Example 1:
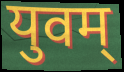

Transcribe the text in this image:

युवम्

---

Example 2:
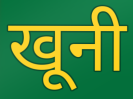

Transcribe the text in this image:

खूनी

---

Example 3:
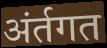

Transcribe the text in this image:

अंर्तगत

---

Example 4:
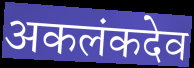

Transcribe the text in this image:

अकलंकदेव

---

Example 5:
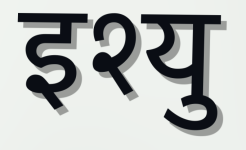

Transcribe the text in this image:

इश्यु